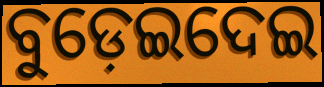
ବୁଡ଼େଇଦେଇ